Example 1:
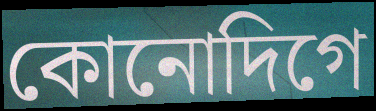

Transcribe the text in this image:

কোনোদিগে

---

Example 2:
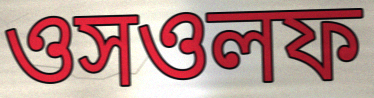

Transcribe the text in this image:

ওসওলফ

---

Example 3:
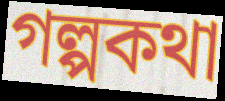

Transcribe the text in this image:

গল্পকথা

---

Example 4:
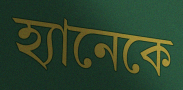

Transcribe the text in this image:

হ্যানেকে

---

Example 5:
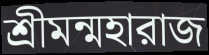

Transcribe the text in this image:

শ্রীমন্মহারাজ